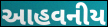
આહવનીય